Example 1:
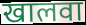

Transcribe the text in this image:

खालवा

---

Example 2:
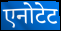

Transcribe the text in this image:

एनोटेट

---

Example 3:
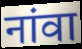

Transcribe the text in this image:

नांवा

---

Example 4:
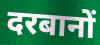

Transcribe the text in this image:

दरबानों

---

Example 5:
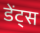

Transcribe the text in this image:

डेंट्स